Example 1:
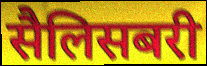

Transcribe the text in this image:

सैलिसबरी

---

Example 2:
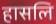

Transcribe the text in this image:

हासलि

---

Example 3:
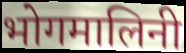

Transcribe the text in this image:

भोगमालिनी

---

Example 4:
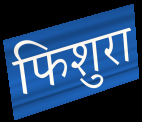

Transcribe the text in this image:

फिशुरा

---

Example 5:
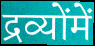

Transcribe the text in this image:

द्रव्योंमें